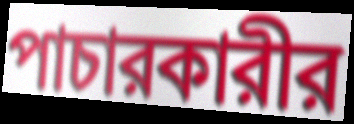
পাচারকারীর